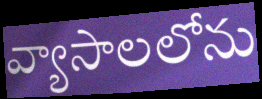
వ్యాసాలలోను